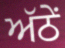
ਅੱਠੇਂ